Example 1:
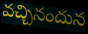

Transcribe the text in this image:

వచ్చినందున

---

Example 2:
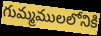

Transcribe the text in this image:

గుమ్మములలోనికి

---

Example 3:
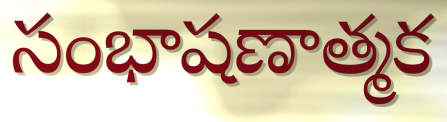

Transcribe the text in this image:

సంభాషణాత్మక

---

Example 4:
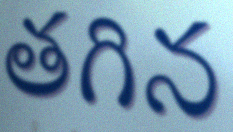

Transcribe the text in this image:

తగిన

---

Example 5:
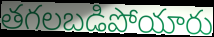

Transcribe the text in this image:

తగలబడిపోయారు